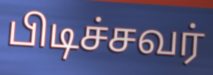
பிடிச்சவர்